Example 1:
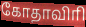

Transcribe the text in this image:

கோதாவிரி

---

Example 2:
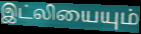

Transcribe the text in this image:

இட்லியையும்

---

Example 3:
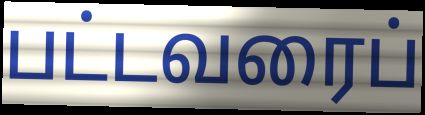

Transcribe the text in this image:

பட்டவரைப்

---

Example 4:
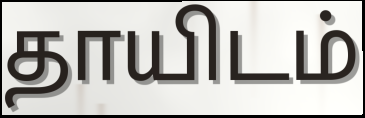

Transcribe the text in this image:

தாயிடம்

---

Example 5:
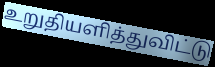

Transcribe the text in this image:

உறுதியளித்துவிட்டு